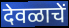
देवळाचें